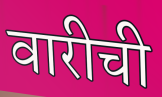
वारीची